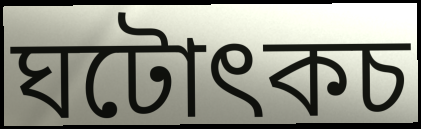
ঘটোৎকচ